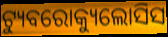
ଟ୍ୟୁବରୋକ୍ୟୁଲୋସିସ